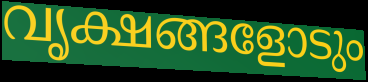
വൃക്ഷങ്ങളോടും